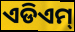
ଏଡିଏମ୍